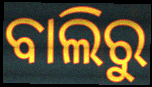
ବାଲିରୁ